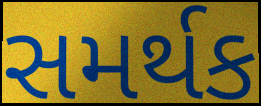
સમર્થક